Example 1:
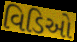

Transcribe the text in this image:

વિડિઓ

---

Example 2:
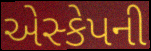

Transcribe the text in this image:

એસ્કેપની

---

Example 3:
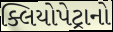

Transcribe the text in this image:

ક્લિયોપેટ્રાનો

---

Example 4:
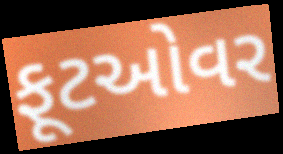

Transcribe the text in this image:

ફૂટઓવર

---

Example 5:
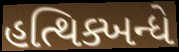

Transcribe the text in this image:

હત્થિક્ખન્ધે